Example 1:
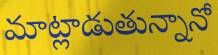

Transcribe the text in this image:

మాట్లాడుతున్నానో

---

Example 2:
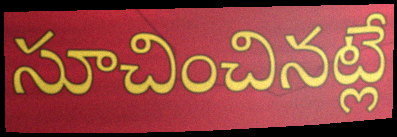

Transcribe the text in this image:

సూచించినట్లే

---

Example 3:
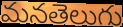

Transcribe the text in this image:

మనతెలుగు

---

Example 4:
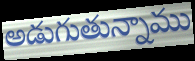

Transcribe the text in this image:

అడుగుతున్నాము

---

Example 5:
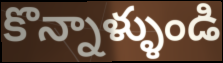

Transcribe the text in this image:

కొన్నాళ్ళుండి